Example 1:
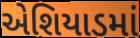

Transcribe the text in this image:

એશિયાડમાં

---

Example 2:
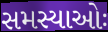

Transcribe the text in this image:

સમસ્યાઓઃ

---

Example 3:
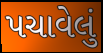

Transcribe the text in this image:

પચાવેલું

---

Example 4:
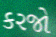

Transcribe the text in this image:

કરજો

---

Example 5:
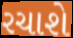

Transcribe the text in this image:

રચાશે